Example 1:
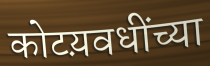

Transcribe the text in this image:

कोटय़वधींच्या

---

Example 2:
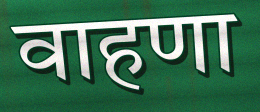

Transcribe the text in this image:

वाहणा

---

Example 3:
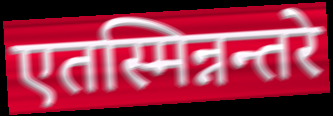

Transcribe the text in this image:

एतस्मिन्नन्तरे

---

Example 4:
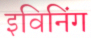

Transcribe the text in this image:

इविनिंग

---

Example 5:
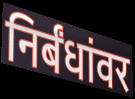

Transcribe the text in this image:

निर्बंधांवर